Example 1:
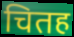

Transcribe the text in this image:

चितह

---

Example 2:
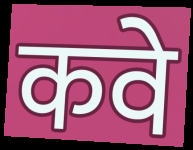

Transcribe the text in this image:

कवे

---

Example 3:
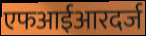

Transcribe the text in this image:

एफआईआरदर्ज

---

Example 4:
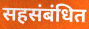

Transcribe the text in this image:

सहसंबंधित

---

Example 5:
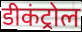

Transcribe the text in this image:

डीकंट्रोल